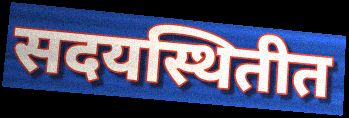
सदयस्थितीत